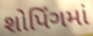
શોપિંગમાં